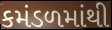
કમંડળમાંથી